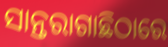
ସାନ୍ତରାଗାଛିଠାରେ